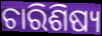
ଚାରିଶିଷ୍ୟ